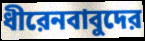
ধীরেনবাবুদের